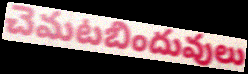
చెమటబిందువులు